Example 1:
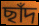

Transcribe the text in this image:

ছাঁদ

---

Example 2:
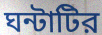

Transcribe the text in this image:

ঘন্টাটির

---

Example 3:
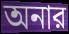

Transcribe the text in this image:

অনার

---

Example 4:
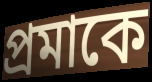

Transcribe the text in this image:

প্রমাকে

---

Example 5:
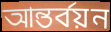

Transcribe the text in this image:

আন্তর্বয়ন